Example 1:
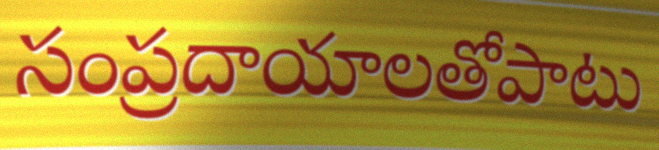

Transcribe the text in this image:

సంప్రదాయాలతోపాటు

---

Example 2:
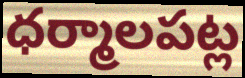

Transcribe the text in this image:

ధర్మాలపట్ల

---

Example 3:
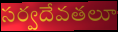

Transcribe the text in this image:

సర్వదేవతలూ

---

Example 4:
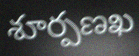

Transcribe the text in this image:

శూర్పణఖ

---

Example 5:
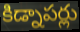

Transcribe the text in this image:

కిడ్నాపర్లు